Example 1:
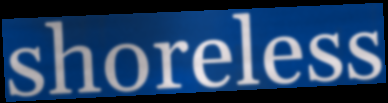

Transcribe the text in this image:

shoreless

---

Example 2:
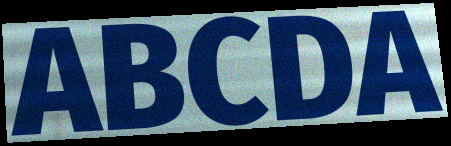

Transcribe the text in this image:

ABCDA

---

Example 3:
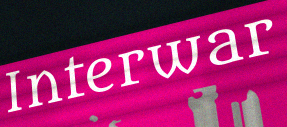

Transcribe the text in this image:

Interwar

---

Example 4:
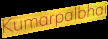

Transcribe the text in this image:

Kumarpalbhai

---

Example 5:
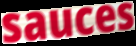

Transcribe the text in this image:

sauces